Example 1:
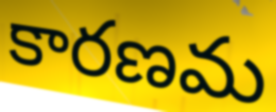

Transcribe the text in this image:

కారణమ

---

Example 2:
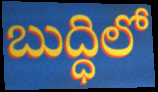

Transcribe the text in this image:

బుద్ధిలో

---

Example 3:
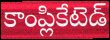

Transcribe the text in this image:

కాంప్లికేటెడ్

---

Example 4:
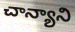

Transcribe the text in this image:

చాన్యాని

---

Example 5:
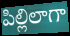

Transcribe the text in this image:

పిల్లిలాగా